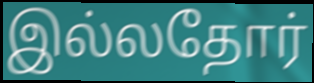
இல்லதோர்